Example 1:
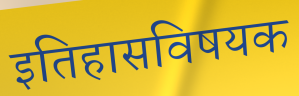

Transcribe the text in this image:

इतिहासविषयक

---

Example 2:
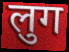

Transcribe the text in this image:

लुग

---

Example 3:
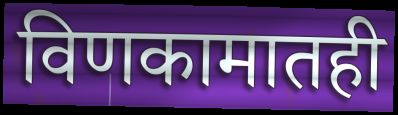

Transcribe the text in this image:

विणकामातही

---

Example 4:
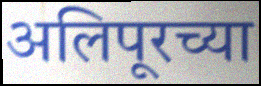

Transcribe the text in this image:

अलिपूरच्या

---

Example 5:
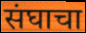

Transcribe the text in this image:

संघाचा